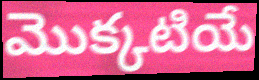
మొక్కటియే